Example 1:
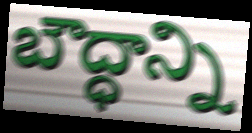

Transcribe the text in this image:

బౌద్ధాన్ని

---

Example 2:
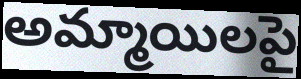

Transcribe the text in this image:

అమ్మాయిలపై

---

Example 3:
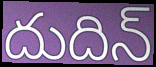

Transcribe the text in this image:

దుదిన్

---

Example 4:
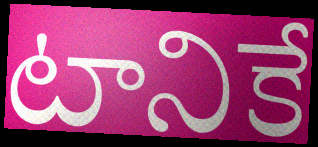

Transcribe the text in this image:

టానికే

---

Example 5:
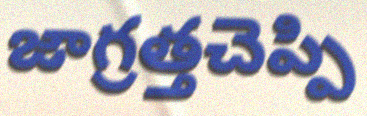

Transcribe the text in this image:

జాగ్రత్తచెప్పి